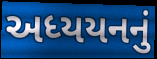
અધ્યયનનું